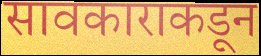
सावकाराकडून